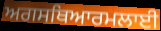
ਅਗਸਥਿਆਰਮਲਾਈ